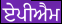
ਏਪੀਐਮ